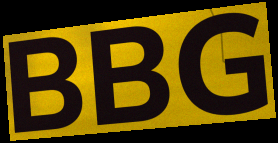
BBG